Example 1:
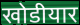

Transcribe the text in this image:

खोडीयार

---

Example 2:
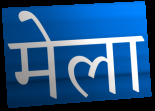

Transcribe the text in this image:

मेला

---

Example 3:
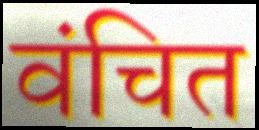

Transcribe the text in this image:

वंचित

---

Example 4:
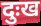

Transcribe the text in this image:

दुःख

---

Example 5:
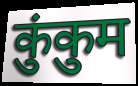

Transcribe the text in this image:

कुंकुम